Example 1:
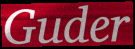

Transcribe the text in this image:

Guder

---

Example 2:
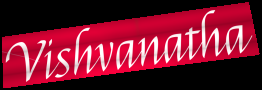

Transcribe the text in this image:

Vishvanatha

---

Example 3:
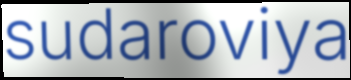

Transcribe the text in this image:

sudaroviya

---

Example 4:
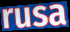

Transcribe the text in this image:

rusa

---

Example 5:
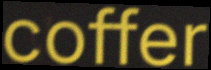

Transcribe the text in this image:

coffer